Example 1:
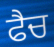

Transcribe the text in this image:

ਫੈਚ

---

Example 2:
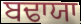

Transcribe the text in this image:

ਬਢਾਯਾ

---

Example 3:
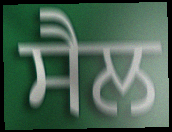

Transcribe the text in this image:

ਸੈਲ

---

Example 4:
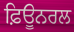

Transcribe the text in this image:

ਫ਼ਿਊਨਰਲ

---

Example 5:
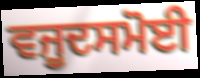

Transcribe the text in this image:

ਵਜੂਦਸਮੋਈ